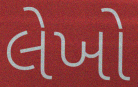
લેખો